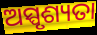
ଅସ୍ପୃଶ୍ୟତା